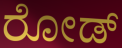
ರೋಡ್